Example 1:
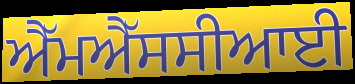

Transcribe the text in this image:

ਐੱਮਐੱਸਸੀਆਈ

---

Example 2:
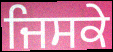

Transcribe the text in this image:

ਜਿਸਕੇ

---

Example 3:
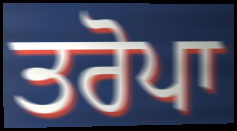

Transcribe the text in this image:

ਤਰੋਪਾ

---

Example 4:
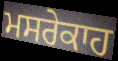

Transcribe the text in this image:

ਮਸਰੇਕਾਹ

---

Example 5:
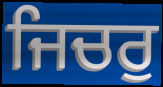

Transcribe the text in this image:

ਜਿਚਰੁ